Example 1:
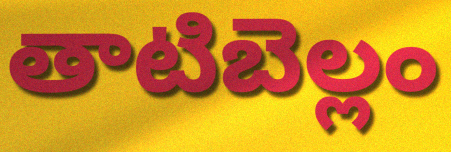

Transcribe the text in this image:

తాటిబెల్లం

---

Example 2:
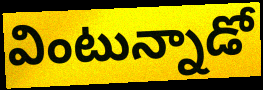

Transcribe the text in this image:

వింటున్నాడో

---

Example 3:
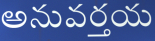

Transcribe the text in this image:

అనువర్తయ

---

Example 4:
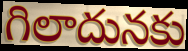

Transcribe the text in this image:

గిలాదునకు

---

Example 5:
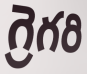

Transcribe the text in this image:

గ్రెగరి